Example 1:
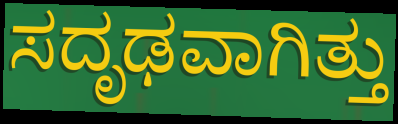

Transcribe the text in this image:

ಸದೃಢವಾಗಿತ್ತು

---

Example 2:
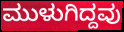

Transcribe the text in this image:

ಮುಳುಗಿದ್ದವು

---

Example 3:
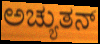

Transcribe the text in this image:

ಅಚ್ಯುತನ್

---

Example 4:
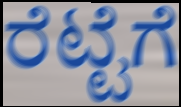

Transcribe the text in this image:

ರೆಟ್ಟೆಗೆ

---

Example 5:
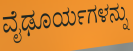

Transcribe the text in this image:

ವೈಢೂರ್ಯಗಳನ್ನು